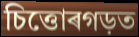
চিত্তোৰগড়ত